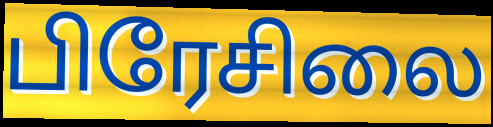
பிரேசிலை